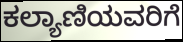
ಕಲ್ಯಾಣಿಯವರಿಗೆ